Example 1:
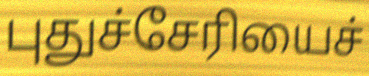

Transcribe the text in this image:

புதுச்சேரியைச்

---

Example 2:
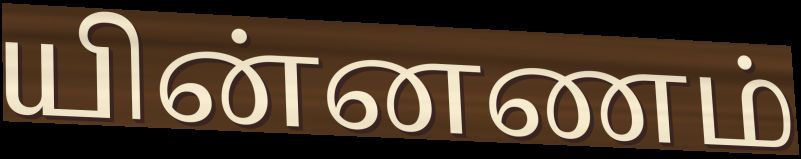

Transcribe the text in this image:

யின்னணம்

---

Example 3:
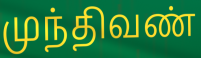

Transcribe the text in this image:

முந்திவண்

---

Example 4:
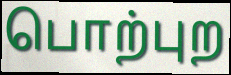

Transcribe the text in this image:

பொற்புற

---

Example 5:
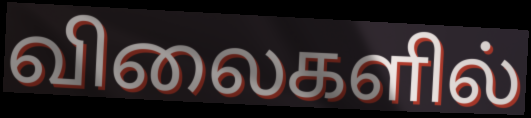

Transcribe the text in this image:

விலைகளில்